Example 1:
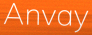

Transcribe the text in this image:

Anvay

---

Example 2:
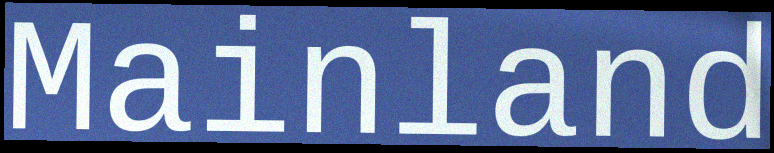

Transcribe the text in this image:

Mainland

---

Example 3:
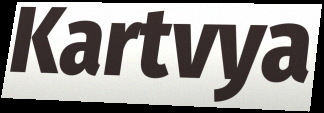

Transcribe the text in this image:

Kartvya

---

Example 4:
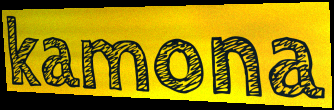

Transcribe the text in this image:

kamona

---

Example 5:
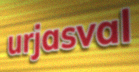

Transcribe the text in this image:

urjasval